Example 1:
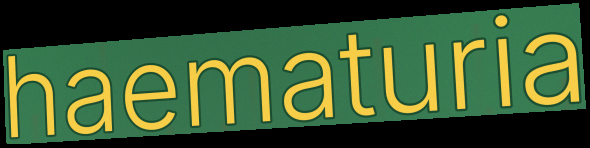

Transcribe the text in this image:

haematuria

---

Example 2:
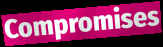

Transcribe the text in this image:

Compromises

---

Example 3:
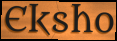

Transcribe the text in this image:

Eksho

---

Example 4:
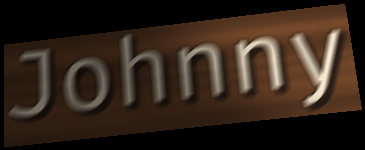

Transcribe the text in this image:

Johnny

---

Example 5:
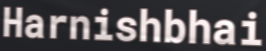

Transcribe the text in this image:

Harnishbhai